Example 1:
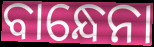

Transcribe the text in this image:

ବାନ୍ଧେନା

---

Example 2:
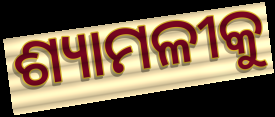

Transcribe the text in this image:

ଶ୍ୟାମଳୀକୁ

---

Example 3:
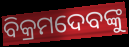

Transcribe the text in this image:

ବିକ୍ରମଦେବଙ୍କୁ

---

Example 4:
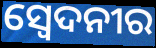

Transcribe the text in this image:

ସ୍ୱେଦନୀର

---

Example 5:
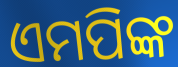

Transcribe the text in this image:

ଏମପିଙ୍କ